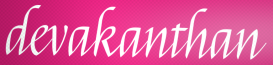
devakanthan